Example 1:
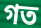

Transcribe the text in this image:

গত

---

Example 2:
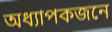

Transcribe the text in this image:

অধ্যাপকজনে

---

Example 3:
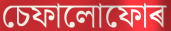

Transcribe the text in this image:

চেফালোফোৰ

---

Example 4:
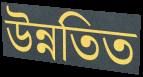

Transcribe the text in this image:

উন্নতিত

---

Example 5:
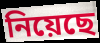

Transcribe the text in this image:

নিয়েছে